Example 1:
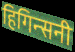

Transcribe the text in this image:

हिगिन्सनी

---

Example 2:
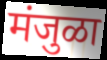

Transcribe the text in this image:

मंजुळा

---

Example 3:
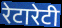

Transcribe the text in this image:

रेटारेटी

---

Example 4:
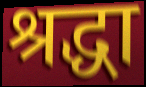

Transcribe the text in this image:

श्रद्धा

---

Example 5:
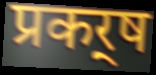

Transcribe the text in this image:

प्रकर्ष